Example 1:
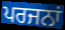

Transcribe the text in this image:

ਪਰਜਨਾਂ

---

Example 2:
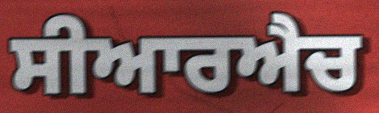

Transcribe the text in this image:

ਸੀਆਰਐਚ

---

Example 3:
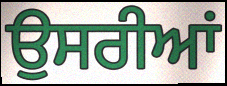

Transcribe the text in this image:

ਉਸਰੀਆਂ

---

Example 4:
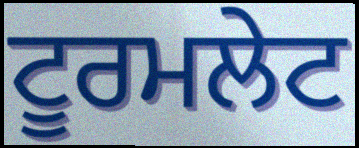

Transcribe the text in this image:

ਟੂਰਮਲੇਟ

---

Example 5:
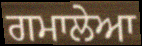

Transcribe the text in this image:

ਗਮਾਲੇਆ